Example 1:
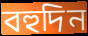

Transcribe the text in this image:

বহুদিন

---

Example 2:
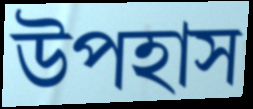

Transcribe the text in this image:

উপহাস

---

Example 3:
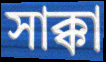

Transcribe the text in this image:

সাক্কা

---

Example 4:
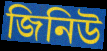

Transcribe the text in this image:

জিনিউ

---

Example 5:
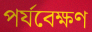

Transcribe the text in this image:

পর্যবেক্ষণ